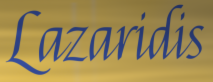
Lazaridis